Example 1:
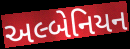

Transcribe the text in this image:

અલ્બેનિયન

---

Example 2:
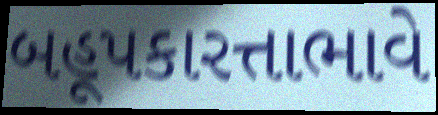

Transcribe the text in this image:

બહૂપકારત્તાભાવે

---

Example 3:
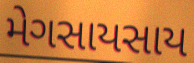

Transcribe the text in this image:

મેગસાયસાય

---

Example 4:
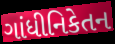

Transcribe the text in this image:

ગાંધીનિકેતન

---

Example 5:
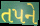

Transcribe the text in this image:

તપને